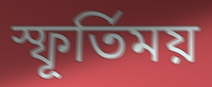
স্ফূর্তিময়